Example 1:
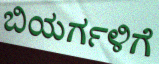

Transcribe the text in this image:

ಬಿಯರ್ಗಳಿಗೆ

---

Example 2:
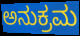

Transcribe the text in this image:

ಅನುಕ್ರಮ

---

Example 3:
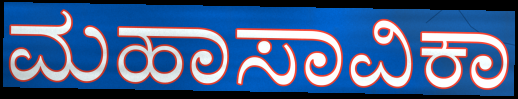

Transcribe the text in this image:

ಮಹಾಸಾವಿಕಾ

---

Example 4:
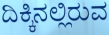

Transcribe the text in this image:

ದಿಕ್ಕಿನಲ್ಲಿರುವ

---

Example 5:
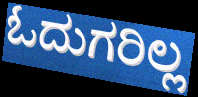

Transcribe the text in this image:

ಓದುಗರಿಲ್ಲ